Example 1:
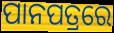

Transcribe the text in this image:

ପାନପତ୍ରରେ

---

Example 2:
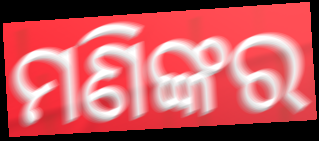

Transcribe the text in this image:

ମଣିଙ୍କର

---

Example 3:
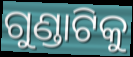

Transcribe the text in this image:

ଗୁଣ୍ଡାଟିକୁ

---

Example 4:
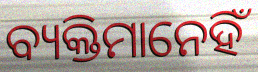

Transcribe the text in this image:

ବ୍ୟକ୍ତିମାନେହିଁ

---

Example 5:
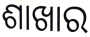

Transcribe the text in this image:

ଶାଖାର